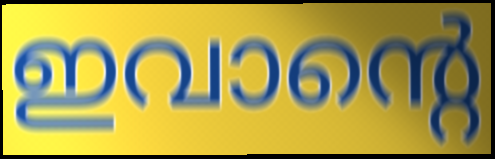
ഇവാന്റെ